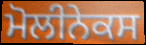
ਮੋਲੀਨੇਕਸ